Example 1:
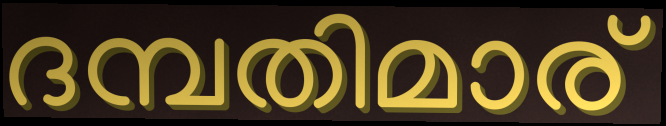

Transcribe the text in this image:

ദമ്പതിമാര്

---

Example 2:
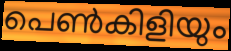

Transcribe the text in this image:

പെൺകിളിയും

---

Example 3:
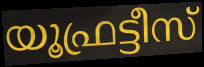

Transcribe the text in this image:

യൂഫ്രട്ടീസ്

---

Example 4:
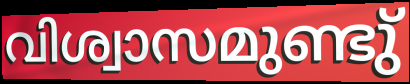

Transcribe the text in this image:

വിശ്വാസമുണ്ടു്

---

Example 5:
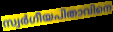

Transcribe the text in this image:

സ്വർഗീയപിതാവിനെ